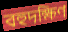
বহুদক্ষিণ